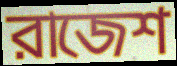
রাজেশ